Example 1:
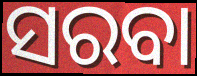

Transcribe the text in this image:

ସରବା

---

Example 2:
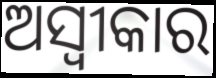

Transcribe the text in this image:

ଅସ୍ବୀକାର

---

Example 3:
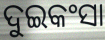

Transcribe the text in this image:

ଦୁଇକଂସା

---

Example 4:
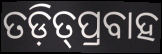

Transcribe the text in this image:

ତଡ଼ିତ୍‌ପ୍ରବାହ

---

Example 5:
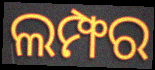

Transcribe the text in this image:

ଲମ୍ଫର